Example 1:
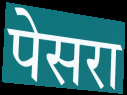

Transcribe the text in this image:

पेसरा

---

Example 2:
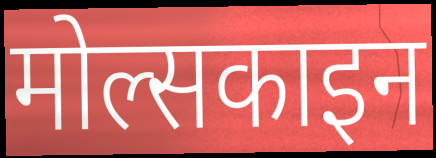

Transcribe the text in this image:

मोल्सकाइन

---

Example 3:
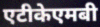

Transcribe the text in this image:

एटीकेएमबी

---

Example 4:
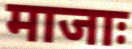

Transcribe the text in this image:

माजाः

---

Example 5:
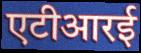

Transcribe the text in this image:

एटीआरई